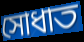
সোধাত